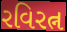
રવિરત્ન